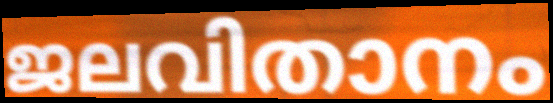
ജലവിതാനം